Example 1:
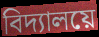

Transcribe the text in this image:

বিদ্যালয়ে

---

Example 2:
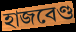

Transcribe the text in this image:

হাজবেণ্ড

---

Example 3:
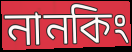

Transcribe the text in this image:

নানকিং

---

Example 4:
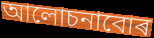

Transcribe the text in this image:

আলোচনাবোৰ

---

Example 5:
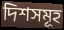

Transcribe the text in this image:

দিশসমূহ